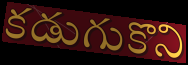
కడుగుకొని